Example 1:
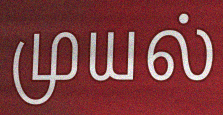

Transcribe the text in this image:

முயல்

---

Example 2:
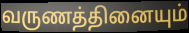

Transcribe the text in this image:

வருணத்தினையும்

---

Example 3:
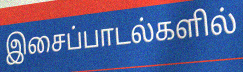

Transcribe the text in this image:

இசைப்பாடல்களில்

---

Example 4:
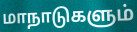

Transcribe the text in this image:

மாநாடுகளும்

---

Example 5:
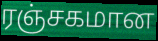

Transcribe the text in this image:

ரஞ்சகமான